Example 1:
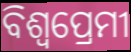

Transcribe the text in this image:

ବିଶ୍ବପ୍ରେମୀ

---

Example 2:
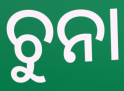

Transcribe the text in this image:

ଚୁନା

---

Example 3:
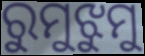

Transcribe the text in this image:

ରୁମୁଝୁମୁ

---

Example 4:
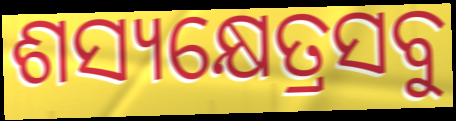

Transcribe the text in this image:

ଶସ୍ୟକ୍ଷେତ୍ରସବୁ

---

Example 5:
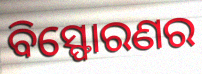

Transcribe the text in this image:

ବିସ୍ଫୋରଣର